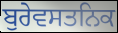
ਬੁਰੇਵਸਤਨਿਕ